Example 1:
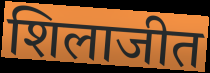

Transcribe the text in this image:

शिलाजीत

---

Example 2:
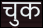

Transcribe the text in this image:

चुक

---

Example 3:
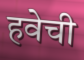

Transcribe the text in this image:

हवेची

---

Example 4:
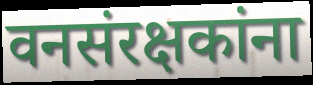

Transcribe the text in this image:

वनसंरक्षकांना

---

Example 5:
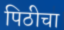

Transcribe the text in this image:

पिठीचा